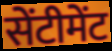
सेंटीमेंट